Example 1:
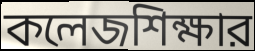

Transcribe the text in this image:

কলেজশিক্ষার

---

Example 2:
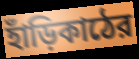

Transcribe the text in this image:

হাঁড়িকাঠের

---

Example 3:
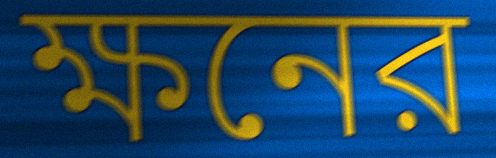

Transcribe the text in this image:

ক্ষনের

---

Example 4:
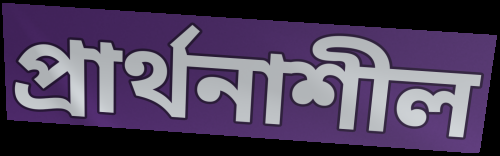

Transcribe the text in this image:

প্রার্থনাশীল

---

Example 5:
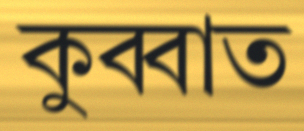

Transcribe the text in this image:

কুব্বাত